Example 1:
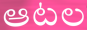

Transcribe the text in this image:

ఆటల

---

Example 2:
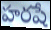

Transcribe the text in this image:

హరషే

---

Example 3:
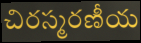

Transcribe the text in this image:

చిరస్మరణీయ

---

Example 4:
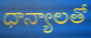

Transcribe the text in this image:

ధాన్యాలతో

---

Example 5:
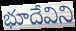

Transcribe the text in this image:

భూదేవిని